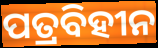
ପତ୍ରବିହୀନ